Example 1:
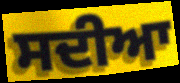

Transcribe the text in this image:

ਸਦੀਆ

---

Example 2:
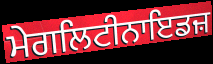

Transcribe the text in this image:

ਮੇਗਲਿਟੀਨਾਇਡਜ਼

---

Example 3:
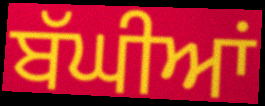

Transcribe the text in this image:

ਬੱਘੀਆਂ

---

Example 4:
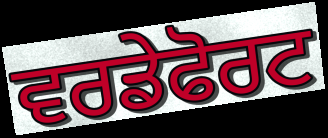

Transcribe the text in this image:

ਵਰਡੇਫੋਰਟ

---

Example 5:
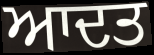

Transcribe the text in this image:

ਆਦਤ